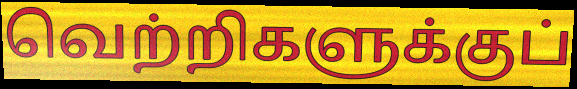
வெற்றிகளுக்குப்